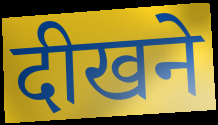
दीखने